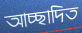
আচ্ছাদিত